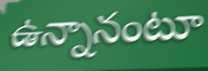
ఉన్నానంటూ